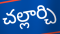
చల్లార్చి